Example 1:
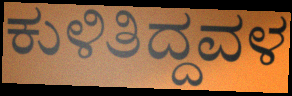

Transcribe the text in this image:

ಕುಳಿತಿದ್ದವಳ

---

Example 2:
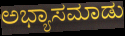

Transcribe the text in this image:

ಅಭ್ಯಾಸಮಾಡು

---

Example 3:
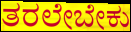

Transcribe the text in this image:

ತರಲೇಬೇಕು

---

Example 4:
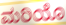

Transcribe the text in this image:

ಮರಿಯೊ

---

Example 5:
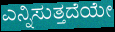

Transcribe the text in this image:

ಎನ್ನಿಸುತ್ತದೆಯೇ